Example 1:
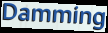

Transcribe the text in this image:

Damming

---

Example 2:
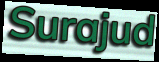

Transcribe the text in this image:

Surajud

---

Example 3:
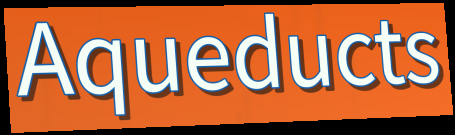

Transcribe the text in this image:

Aqueducts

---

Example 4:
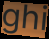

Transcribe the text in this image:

ghi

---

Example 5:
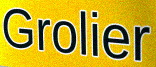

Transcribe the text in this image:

Grolier